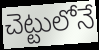
చెట్టులోనే